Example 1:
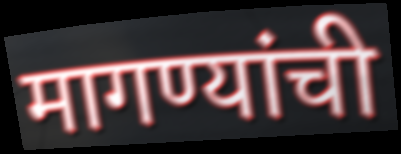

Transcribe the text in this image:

मागण्यांची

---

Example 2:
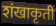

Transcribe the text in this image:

शंखाकृती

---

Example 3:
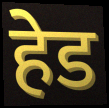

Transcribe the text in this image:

हेड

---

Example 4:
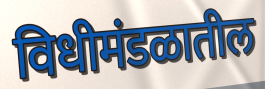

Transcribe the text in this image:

विधीमंडळातील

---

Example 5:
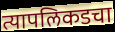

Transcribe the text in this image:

त्यापलिकडचा